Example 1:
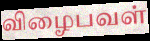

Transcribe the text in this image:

விழைபவள்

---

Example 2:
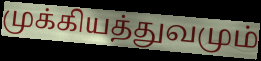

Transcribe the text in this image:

முக்கியத்துவமும்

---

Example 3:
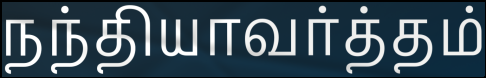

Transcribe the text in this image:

நந்தியாவர்த்தம்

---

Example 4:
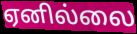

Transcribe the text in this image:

ஏனில்லை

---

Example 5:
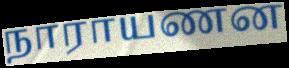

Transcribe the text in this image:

நாராயணன